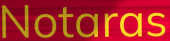
Notaras